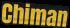
Chiman